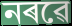
নৰৱে